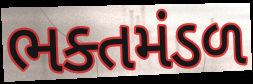
ભક્તમંડળ